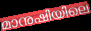
മാനുഷിയിലെ